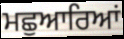
ਮਛੁਆਰਿਆਂ